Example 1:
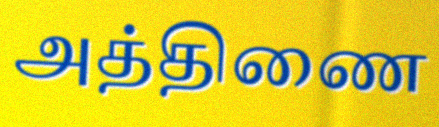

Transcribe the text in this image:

அத்திணை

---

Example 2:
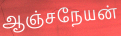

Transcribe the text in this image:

ஆஞ்சநேயன்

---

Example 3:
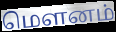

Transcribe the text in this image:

மௌனம்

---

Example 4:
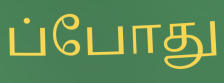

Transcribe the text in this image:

ப்போது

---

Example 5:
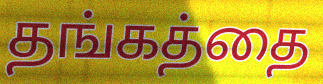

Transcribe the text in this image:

தங்கத்தை